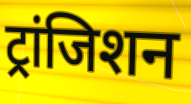
ट्रांजिशन